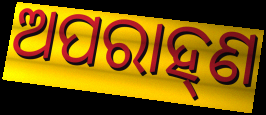
ଅପରାହ୍‍ଣ